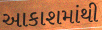
આકાશમાંથી